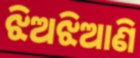
ଝିଅଝିଆଣି